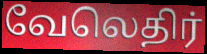
வேலெதிர்